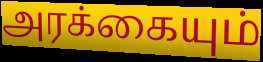
அரக்கையும்